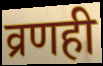
व्रणही